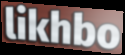
likhbo